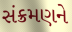
સંક્રમણને